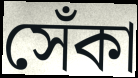
সেঁকা